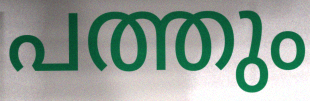
പത്തും